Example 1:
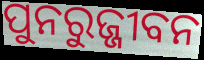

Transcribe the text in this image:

ପୁନରୁଜ୍ଜୀବନ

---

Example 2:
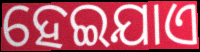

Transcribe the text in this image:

ହେଇଯାଏ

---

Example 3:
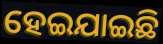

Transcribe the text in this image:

ହେଇଯାଇଛି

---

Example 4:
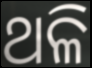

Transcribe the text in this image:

ଥଳି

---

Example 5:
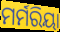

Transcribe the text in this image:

ମର୍ମରିୟା